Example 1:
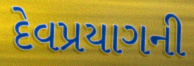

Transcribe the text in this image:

દેવપ્રયાગની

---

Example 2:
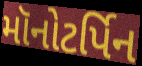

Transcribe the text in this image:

મૉનોટર્પિન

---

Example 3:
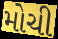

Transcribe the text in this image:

મોચી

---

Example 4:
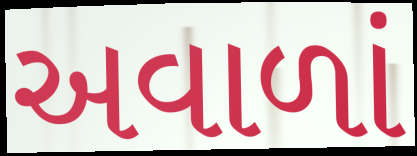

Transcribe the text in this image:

અવાળાં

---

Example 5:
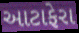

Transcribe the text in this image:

આટાફેરા